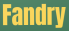
Fandry